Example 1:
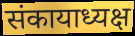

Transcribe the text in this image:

संकायाध्यक्ष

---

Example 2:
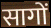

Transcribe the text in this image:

सागों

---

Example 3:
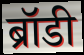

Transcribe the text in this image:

ब्रॉडी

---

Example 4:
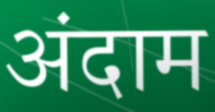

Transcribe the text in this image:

अंदाम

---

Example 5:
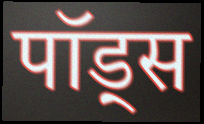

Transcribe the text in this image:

पॉड्स